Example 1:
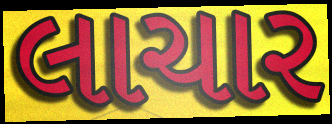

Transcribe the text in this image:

લાચાર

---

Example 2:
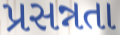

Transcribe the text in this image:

પ્રસન્નતા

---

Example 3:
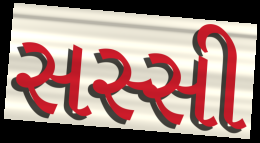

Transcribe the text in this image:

સસ્સી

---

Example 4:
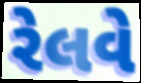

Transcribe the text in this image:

રેલવે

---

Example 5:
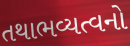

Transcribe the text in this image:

તથાભવ્યત્વનો